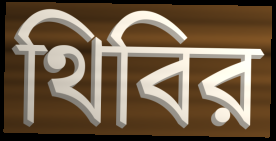
থিবির